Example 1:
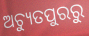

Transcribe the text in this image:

ଅଚ୍ୟୁତପୁରରୁ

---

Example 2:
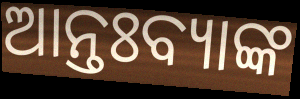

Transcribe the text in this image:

ଆନ୍ତଃବ୍ୟାଙ୍କ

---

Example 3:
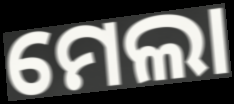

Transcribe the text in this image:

ମେଲା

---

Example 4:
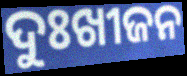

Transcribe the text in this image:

ଦୁଃଖୀଜନ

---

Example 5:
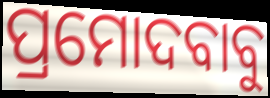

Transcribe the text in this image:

ପ୍ରମୋଦବାବୁ